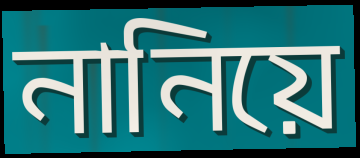
নানিয়ে